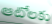
ఆటోలకు